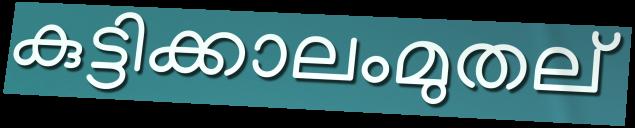
കുട്ടിക്കാലംമുതല്